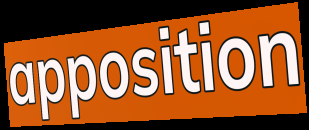
apposition